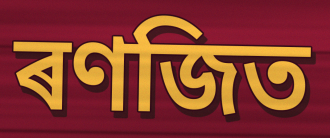
ৰণজিত